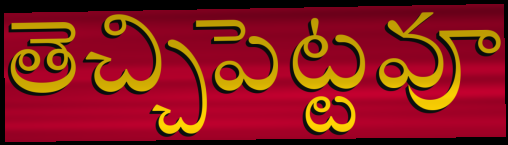
తెచ్చిపెట్టవూ